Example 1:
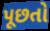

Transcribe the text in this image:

પૂછતો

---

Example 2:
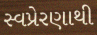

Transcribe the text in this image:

સ્વપ્રેરણાથી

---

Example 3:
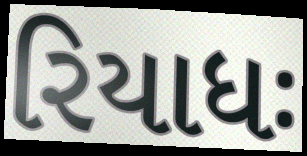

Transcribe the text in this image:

રિયાધઃ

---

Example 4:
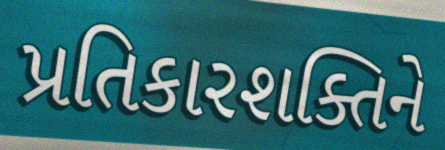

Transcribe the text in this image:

પ્રતિકારશક્તિને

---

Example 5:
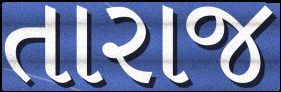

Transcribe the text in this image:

તારાજ